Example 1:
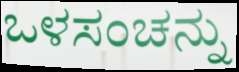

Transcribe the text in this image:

ಒಳಸಂಚನ್ನು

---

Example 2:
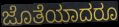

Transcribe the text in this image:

ಜೊತೆಯಾದರೂ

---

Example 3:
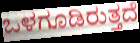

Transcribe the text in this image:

ಒಳಗೂಡಿರುತ್ತದೆ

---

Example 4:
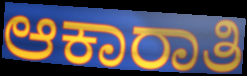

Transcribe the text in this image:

ಆಕಾರಾತಿ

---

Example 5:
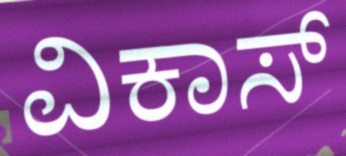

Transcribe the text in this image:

ವಿಕಾಸ್